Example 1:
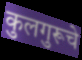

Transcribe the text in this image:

कुलगुरूचे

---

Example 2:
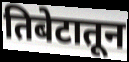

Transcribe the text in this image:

तिबेटातून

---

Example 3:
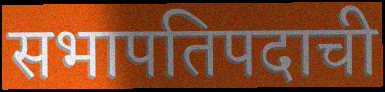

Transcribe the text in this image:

सभापतिपदाची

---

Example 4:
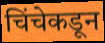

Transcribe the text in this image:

चिंचेकडून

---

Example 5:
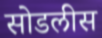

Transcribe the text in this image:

सोडलीस